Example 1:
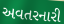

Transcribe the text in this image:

અવતરનારી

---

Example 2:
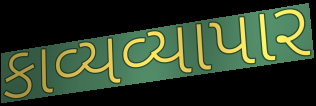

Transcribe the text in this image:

કાવ્યવ્યાપાર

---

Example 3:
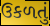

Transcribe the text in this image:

ઉકળતું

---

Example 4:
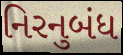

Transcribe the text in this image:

નિરનુબંધ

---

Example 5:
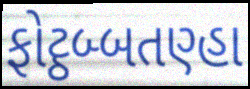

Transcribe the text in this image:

ફોટ્ઠબ્બતણ્હા